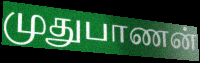
முதுபாணன்